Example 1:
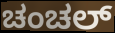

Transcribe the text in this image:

ಚಂಚಲ್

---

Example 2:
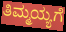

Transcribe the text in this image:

ತಿಮ್ಮಯ್ಯಗೆ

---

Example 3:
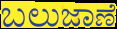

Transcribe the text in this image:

ಬಲುಜಾಣೆ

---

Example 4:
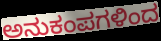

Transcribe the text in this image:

ಅನುಕಂಪಗಳಿಂದ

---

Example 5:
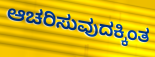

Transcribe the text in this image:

ಆಚರಿಸುವುದಕ್ಕಿಂತ